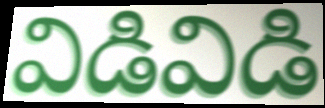
విడివిడి